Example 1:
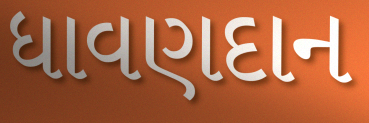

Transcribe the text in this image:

ધાવણદાન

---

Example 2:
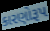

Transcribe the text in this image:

કારણોરૂપ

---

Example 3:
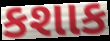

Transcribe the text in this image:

કશાક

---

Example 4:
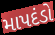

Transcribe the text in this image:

માપદંડો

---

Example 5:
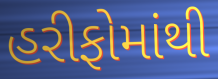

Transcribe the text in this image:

હરીફોમાંથી